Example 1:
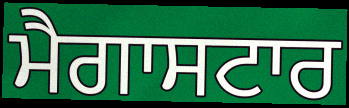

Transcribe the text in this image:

ਮੈਗਾਸਟਾਰ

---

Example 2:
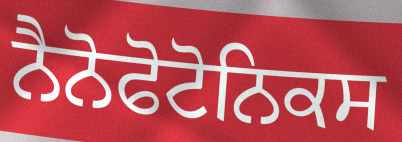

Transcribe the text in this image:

ਨੈਨੋਫੋਟੋਨਿਕਸ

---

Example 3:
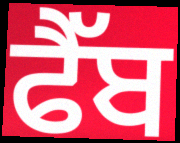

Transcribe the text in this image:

ਫੈੱਬ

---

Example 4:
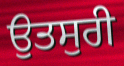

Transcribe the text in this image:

ਉਤਸੁਰੀ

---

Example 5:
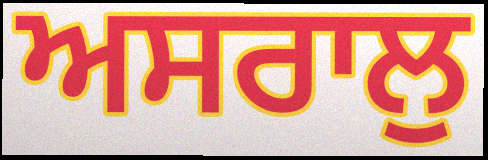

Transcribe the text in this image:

ਅਸਰਾਲੁ